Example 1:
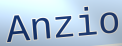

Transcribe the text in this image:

Anzio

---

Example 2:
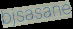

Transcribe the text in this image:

bjsasane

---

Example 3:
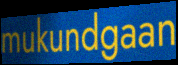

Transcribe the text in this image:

mukundgaan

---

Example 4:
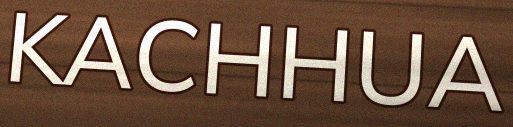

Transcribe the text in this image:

KACHHUA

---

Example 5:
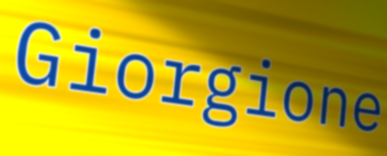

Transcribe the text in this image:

Giorgione